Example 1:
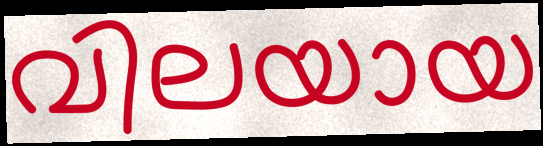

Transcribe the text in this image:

വിലയായ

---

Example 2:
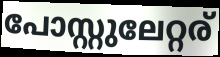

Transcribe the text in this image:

പോസ്റ്റുലേറ്റര്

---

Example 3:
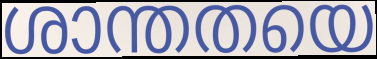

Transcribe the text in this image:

ശാന്തതയെ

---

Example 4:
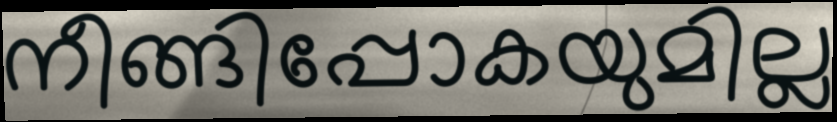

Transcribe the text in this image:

നീങ്ങിപ്പോകയുമില്ല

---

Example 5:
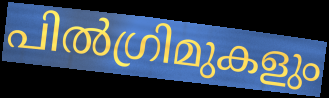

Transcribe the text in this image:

പിൽഗ്രിമുകളും